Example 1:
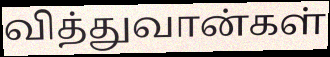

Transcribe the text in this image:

வித்துவான்கள்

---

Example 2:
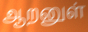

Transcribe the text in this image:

ஆறனுள்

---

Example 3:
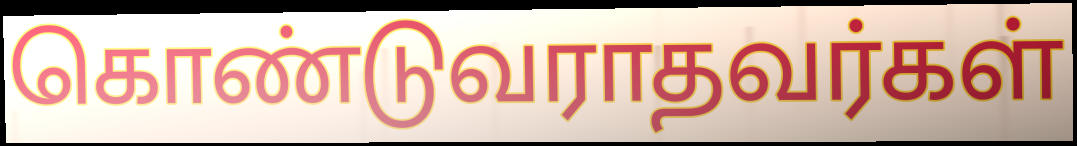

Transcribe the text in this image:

கொண்டுவராதவர்கள்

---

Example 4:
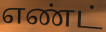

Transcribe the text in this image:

எண்ட்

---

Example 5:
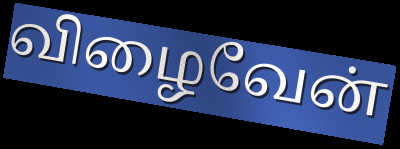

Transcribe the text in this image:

விழைவேன்